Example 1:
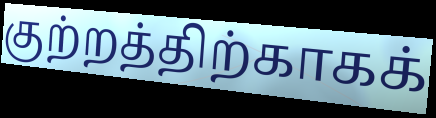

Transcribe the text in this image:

குற்றத்திற்காகக்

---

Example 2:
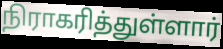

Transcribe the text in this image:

நிராகரித்துள்ளார்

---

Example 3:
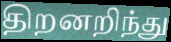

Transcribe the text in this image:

திறனறிந்து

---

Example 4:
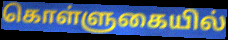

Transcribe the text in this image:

கொள்ளுகையில்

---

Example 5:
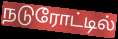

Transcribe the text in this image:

நடுரோட்டில்